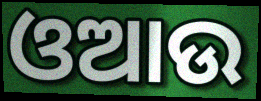
ଓଆଉ